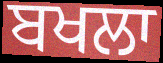
ਬਖਲਾ